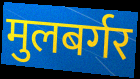
मुलबर्गर